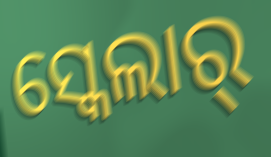
ସ୍କେଲାର୍